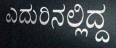
ಎದುರಿನಲ್ಲಿದ್ದ